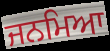
ਜਨਮਿਆ